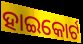
ହାଇକୋର୍ଟ